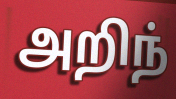
அறிந்